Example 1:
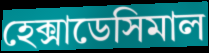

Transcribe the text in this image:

হেক্সাডেসিমাল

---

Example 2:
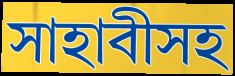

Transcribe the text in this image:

সাহাবীসহ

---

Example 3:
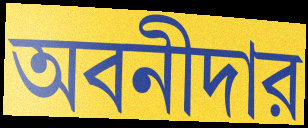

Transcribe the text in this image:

অবনীদার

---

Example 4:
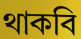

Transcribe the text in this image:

থাকবি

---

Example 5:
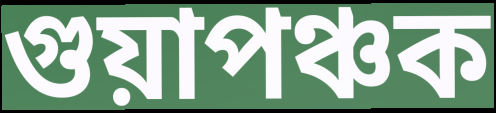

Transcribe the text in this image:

গুয়াপঞ্চক